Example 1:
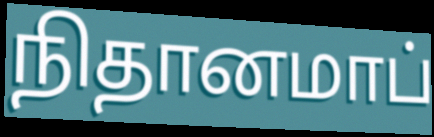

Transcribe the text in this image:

நிதானமாப்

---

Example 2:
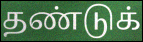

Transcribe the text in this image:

தண்டுக்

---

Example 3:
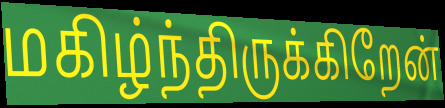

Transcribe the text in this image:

மகிழ்ந்திருக்கிறேன்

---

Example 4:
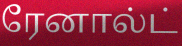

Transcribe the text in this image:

ரேனால்ட்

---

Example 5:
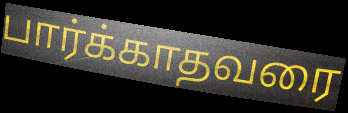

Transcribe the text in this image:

பார்க்காதவரை